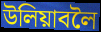
উলিয়াবলৈ